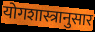
योगशास्त्रानुसार